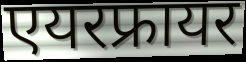
एयरफ्रायर